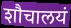
शौचालयं